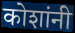
कोशांनी